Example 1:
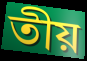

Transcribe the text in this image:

তীয়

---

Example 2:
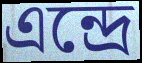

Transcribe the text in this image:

এন্দ্ৰে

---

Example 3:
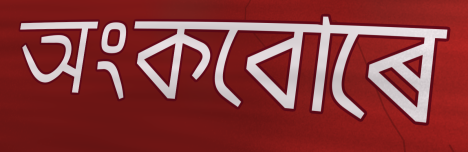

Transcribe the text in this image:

অংকবোৰে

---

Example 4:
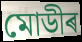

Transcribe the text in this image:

মোডীৰ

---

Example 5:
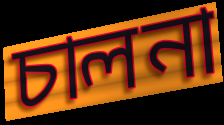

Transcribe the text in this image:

চালনা